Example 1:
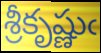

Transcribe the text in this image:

శ్రీకృష్ణుఁ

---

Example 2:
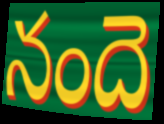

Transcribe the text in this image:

నందె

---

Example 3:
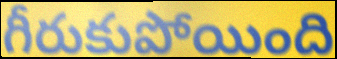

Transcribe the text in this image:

గీరుకుపోయింది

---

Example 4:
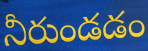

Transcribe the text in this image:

నీరుండడం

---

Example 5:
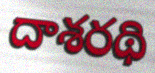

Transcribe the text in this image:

దాశరథి